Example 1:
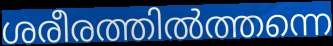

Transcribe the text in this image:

ശരീരത്തിൽത്തന്നെ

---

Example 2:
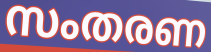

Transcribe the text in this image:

സംതരണ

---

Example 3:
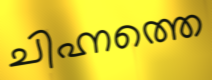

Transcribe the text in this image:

ചിഹ്നത്തെ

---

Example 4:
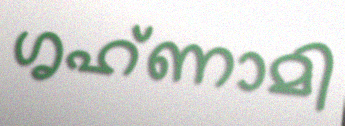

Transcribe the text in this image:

ഗൃഹ്ണാമി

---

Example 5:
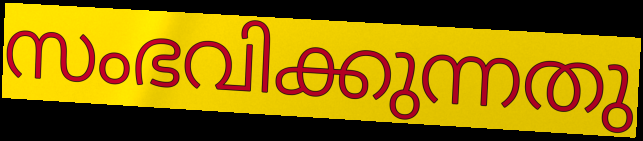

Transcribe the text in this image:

സംഭവിക്കുന്നതു